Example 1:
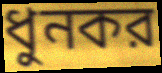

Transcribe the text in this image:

ধুনকর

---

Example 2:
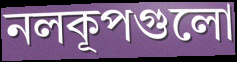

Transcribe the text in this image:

নলকূপগুলো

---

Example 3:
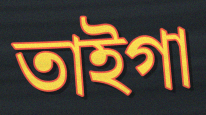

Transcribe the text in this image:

তাইগা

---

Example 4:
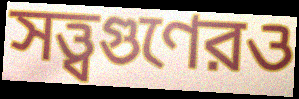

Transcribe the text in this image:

সত্ত্বগুণেরও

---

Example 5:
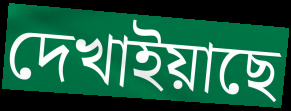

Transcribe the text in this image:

দেখাইয়াছে